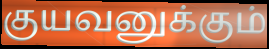
குயவனுக்கும்